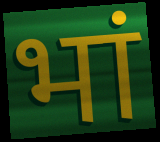
भां